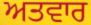
ਅਤਵਾਰ